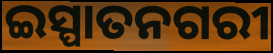
ଇସ୍ପାତନଗରୀ